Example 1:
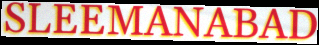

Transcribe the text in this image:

SLEEMANABAD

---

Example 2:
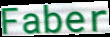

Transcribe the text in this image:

Faber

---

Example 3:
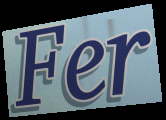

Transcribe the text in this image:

Fer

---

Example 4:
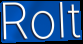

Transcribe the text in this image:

Rolt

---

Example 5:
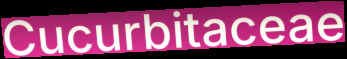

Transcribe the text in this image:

Cucurbitaceae